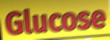
Glucose